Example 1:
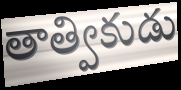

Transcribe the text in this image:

తాత్వికుడు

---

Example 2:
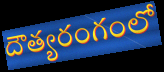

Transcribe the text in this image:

దౌత్యరంగంలో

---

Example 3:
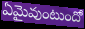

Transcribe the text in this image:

ఏమైవుంటుందో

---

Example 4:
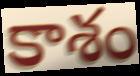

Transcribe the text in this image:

కాశం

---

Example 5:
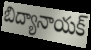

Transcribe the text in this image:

బిద్యానాయక్